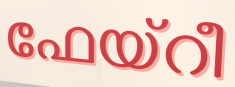
ഫേയ്റീ